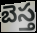
బెస్త